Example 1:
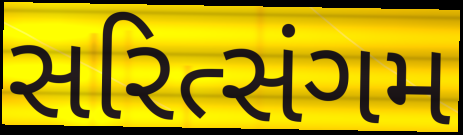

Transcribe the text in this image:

સરિત્સંગમ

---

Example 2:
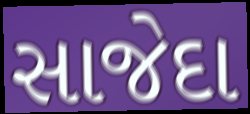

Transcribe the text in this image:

સાજેદા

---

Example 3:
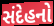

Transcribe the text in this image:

સંદેહનો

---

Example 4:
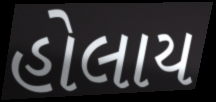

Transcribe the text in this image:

હોલાય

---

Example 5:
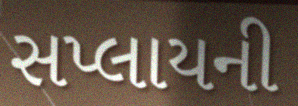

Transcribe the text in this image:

સપ્લાયની